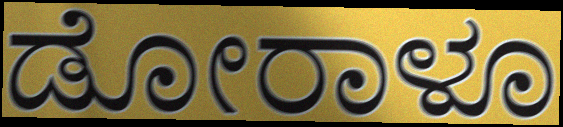
ಡೋರಾಳೂ